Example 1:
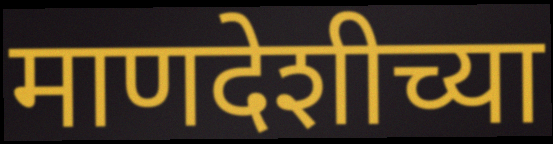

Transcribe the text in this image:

माणदेशीच्या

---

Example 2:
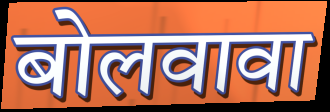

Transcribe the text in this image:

बोलवावा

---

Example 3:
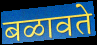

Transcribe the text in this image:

बळावते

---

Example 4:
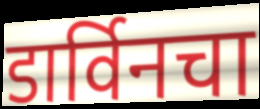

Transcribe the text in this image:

डार्विनचा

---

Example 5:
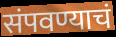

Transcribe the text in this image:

संपवण्याचं